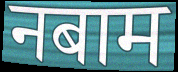
नबाम